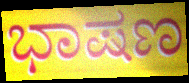
ಭಾಷಣ